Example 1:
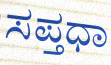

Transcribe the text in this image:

ಸಪ್ತಧಾ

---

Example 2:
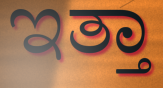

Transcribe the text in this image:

ಇತ್ತಾ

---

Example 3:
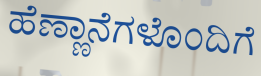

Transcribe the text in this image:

ಹೆಣ್ಣಾನೆಗಳೊಂದಿಗೆ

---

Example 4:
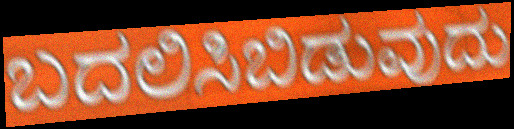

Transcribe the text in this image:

ಬದಲಿಸಿಬಿಡುವುದು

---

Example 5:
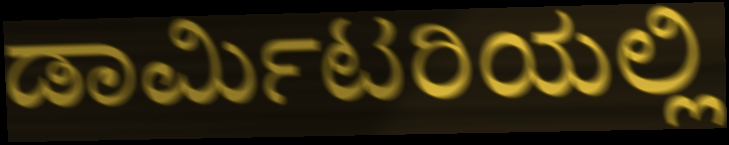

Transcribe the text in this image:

ಡಾರ್ಮಿಟರಿಯಲ್ಲಿ